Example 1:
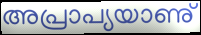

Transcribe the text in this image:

അപ്രാപ്യയാണു്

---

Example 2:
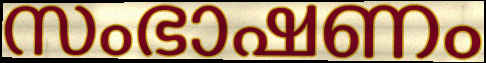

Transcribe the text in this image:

സംഭാഷണം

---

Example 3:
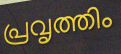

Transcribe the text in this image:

പ്രവൃത്തിം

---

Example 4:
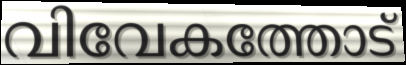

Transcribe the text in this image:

വിവേകത്തോട്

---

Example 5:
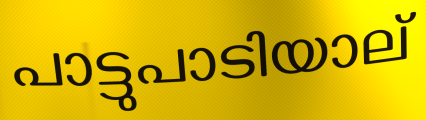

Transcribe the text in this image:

പാട്ടുപാടിയാല്